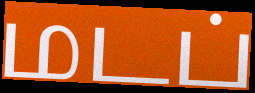
மடப்